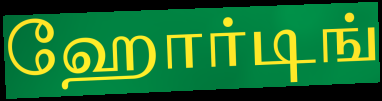
ஹோர்டிங்